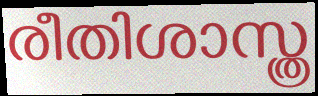
രീതിശാസ്ത്ര